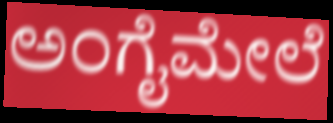
ಅಂಗೈಮೇಲೆ